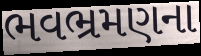
ભવભ્રમણના